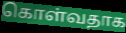
கொள்வதாக